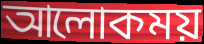
আলোকময়